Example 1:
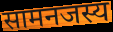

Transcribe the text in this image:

सामनजस्य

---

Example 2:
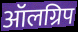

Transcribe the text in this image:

ऑलग्रिप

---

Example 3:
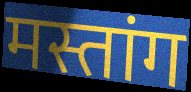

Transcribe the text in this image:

मस्तांग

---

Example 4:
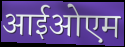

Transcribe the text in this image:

आईओएम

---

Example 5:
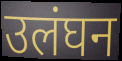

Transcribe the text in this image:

उलंघन